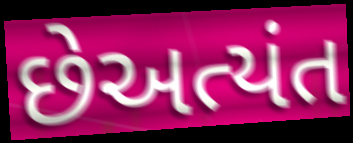
છેઅત્યંત